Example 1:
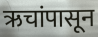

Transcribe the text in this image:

ऋचांपासून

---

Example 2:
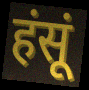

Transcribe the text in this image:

हंसूं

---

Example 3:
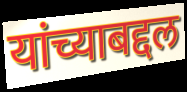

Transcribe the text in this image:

यांच्याबद्दल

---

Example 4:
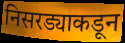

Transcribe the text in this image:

निसरड्याकडून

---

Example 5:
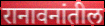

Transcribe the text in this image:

रानावनांतील